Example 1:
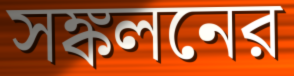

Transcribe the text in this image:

সঙ্কলনের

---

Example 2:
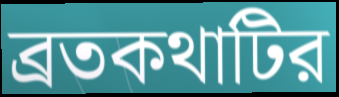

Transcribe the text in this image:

ব্রতকথাটির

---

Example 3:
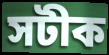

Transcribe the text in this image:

সটীক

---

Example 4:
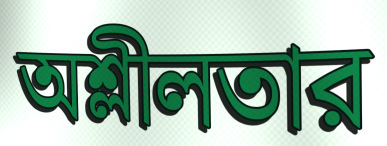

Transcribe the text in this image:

অশ্লীলতার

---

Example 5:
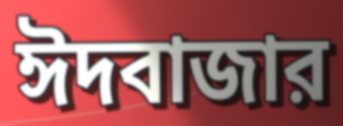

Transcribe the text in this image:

ঈদবাজার